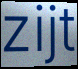
zijt